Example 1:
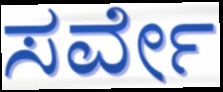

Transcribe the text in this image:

ಸರ್ವೇ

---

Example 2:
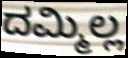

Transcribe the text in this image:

ದಮ್ಮಿಲ್ಲ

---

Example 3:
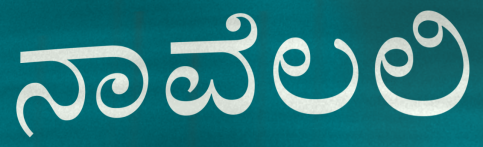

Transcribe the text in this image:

ನಾವೆಲಲಿ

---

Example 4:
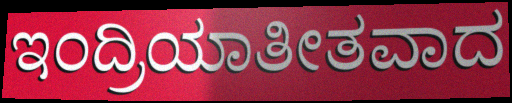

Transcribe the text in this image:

ಇಂದ್ರಿಯಾತೀತವಾದ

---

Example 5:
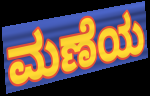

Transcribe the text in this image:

ಮಣೆಯ